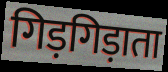
गिड़गिड़ाता